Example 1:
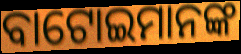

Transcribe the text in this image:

ବାଟୋଇମାନଙ୍କ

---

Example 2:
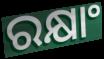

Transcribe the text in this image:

ରକ୍ଷାଂ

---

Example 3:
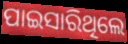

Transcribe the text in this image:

ପାଇସାରିଥିଲେ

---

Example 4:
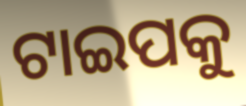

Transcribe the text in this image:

ଟାଇପକୁ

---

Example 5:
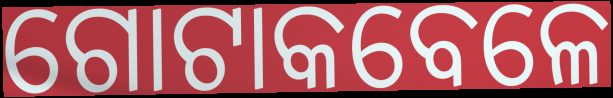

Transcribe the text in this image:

ଗୋଟାକବେଳେ